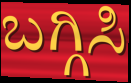
ಬಗ್ಗಿಸಿ